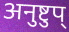
अनुष्टुप्